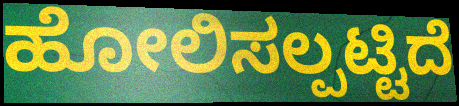
ಹೋಲಿಸಲ್ಪಟ್ಟಿದೆ